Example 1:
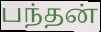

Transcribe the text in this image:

பந்தன்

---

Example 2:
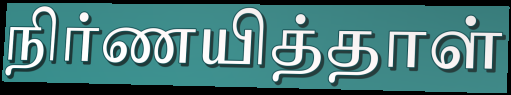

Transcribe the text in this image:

நிர்ணயித்தாள்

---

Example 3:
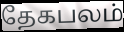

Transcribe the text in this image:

தேகபலம்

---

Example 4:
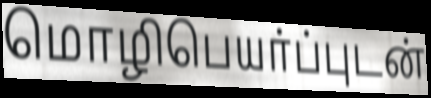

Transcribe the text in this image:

மொழிபெயர்ப்புடன்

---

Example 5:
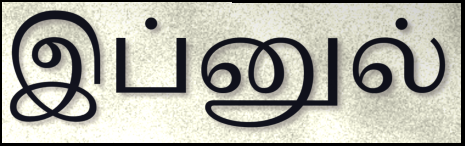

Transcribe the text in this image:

இப்னுல்